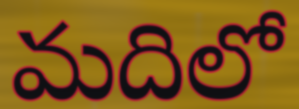
మదిలో